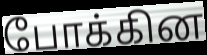
போக்கின